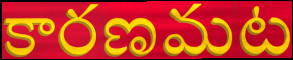
కారణమట